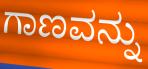
ಗಾಣವನ್ನು